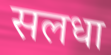
सलधा